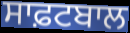
ਸਾਫ਼ਟਬਾਲ